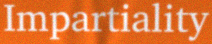
Impartiality